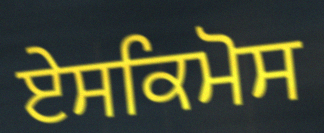
ਏਸਕਿਮੋਸ